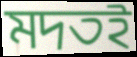
মদতই